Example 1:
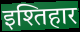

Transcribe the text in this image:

इश्तिहार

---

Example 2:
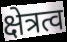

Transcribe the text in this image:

क्षेत्रत्व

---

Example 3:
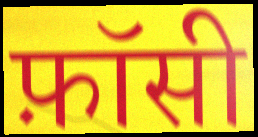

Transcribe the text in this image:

फ़ॉसी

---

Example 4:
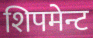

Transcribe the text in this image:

शिपमेन्ट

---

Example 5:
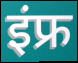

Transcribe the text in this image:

इंफ्र